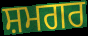
ਸ਼ਮਗਰ